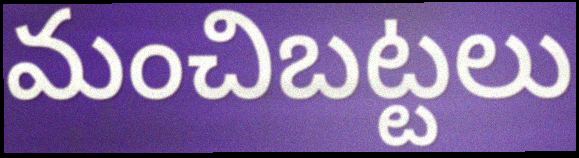
మంచిబట్టలు